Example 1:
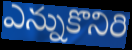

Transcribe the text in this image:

ఎన్నుకొనిరి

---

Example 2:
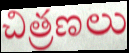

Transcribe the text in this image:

చిత్రణలు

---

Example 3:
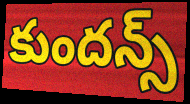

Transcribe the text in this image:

కుందన్స్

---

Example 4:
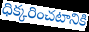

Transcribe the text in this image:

ధిక్కరించటానికి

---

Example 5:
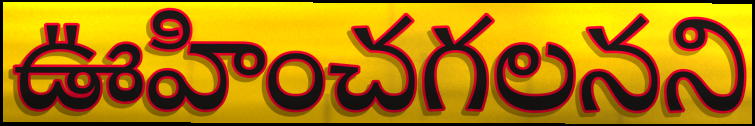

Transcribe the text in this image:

ఊహించగలనని